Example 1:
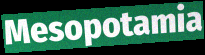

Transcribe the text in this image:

Mesopotamia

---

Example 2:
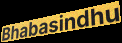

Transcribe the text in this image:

Bhabasindhu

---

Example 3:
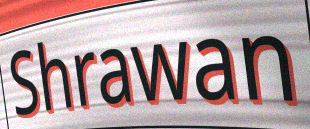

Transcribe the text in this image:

Shrawan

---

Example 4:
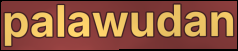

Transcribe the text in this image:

palawudan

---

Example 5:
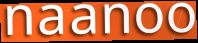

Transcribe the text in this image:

naanoo